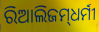
ରିଆଲିଜମ୍‌ଧର୍ମୀ